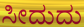
ಸೀದುದು